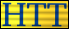
HTT